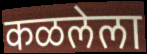
कळलेला